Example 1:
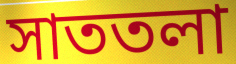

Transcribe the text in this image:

সাততলা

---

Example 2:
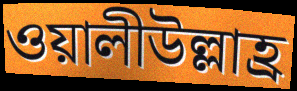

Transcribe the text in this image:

ওয়ালীউল্লাহ্র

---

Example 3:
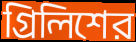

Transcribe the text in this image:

গ্রিলিশের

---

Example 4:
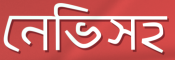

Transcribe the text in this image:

নেভিসহ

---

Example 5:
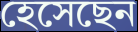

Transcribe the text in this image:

হেসেছেন